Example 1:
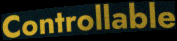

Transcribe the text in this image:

Controllable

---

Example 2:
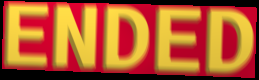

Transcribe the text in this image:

ENDED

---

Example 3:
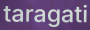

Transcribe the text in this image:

taragati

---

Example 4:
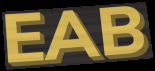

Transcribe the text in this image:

EAB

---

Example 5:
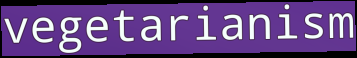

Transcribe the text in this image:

vegetarianism